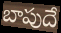
బాపుదే